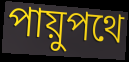
পায়ুপথে